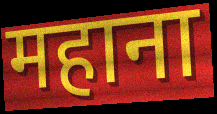
महाना